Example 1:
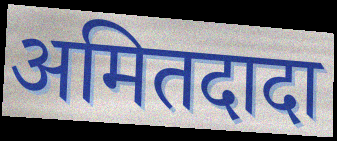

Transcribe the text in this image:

अमितदादा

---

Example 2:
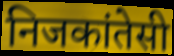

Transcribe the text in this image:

निजकांतेसी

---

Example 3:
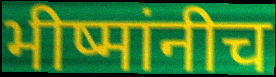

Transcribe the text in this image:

भीष्मांनीच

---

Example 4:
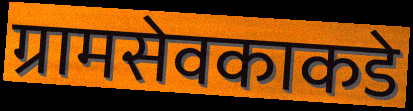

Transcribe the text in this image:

ग्रामसेवकाकडे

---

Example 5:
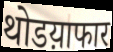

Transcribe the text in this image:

थोडय़ाफार